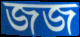
জজ